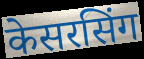
केसरसिंग